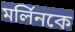
মর্লিনকে